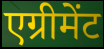
एग्रीमेंट